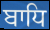
ਬਾਧਿ